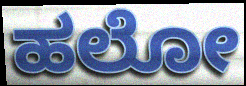
ಹಲೋ